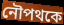
নৌপথকে